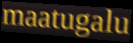
maatugalu